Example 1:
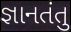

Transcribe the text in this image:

જ્ઞાનતંતુ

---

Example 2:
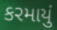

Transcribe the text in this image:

કરમાયું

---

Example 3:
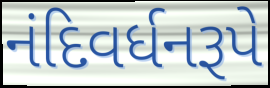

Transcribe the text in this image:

નંદિવર્ધનરૂપે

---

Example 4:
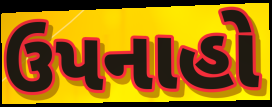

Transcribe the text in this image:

ઉપનાહો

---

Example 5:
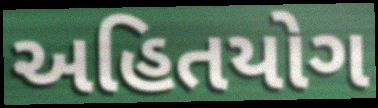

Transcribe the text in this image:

અહિતયોગ